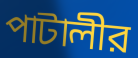
পাটালীর